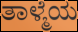
ತಾಳ್ಮೆಯ